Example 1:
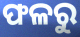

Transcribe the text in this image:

ଫଳରୁ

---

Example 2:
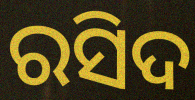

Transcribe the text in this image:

ରସିଦ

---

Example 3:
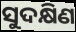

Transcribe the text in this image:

ସୁଦକ୍ଷିଣ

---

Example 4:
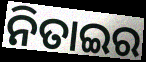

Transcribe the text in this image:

ନିତାଇର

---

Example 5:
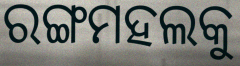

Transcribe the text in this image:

ରଙ୍ଗମହଲକୁ